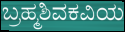
ಬ್ರಹ್ಮಶಿವಕವಿಯ